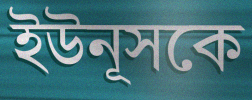
ইউনূসকে